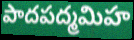
పాదపద్మమిహ